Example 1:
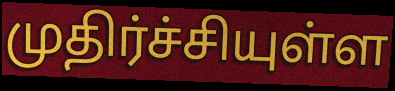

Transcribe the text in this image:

முதிர்ச்சியுள்ள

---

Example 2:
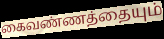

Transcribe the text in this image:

கைவண்ணத்தையும்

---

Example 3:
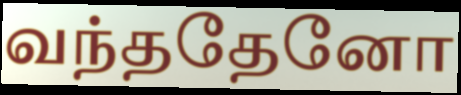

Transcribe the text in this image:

வந்ததேனோ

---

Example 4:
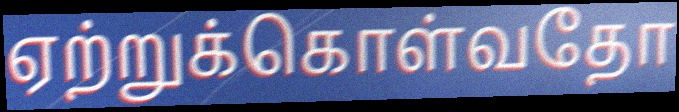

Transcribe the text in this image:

ஏற்றுக்கொள்வதோ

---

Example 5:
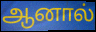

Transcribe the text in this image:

ஆனால்